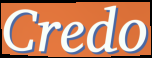
Credo